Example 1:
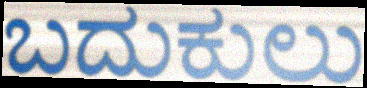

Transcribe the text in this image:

ಬದುಕುಲು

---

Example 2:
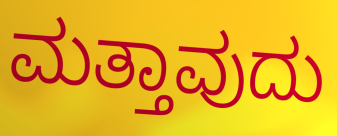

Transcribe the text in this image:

ಮತ್ತಾವುದು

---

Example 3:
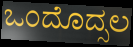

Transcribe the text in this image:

ಒಂದೊದ್ಸಲ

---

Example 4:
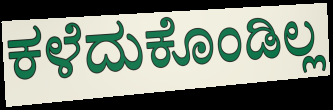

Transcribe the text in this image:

ಕಳೆದುಕೊಂಡಿಲ್ಲ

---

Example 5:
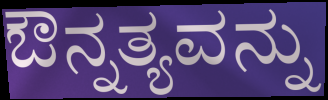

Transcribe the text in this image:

ಔನ್ನತ್ಯವನ್ನು